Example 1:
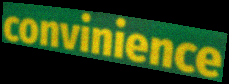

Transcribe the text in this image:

convinience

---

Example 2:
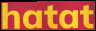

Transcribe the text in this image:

hatat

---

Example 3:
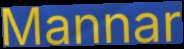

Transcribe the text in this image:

Mannar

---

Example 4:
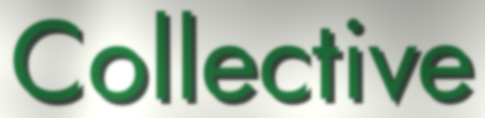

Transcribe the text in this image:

Collective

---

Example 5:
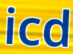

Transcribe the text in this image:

icd